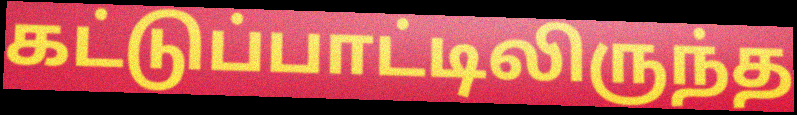
கட்டுப்பாட்டிலிருந்த